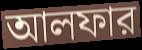
আলফার